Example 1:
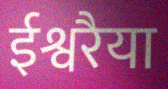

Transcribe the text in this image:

ईश्वरैया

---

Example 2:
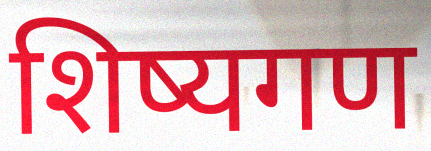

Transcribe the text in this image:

शिष्यगण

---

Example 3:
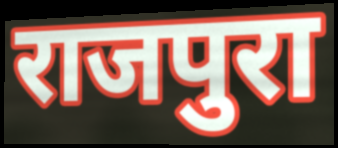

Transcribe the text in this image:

राजपुरा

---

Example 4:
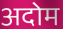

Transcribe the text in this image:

अदोम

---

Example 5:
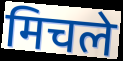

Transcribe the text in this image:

मिचले